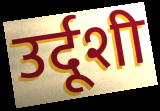
उर्दूशी